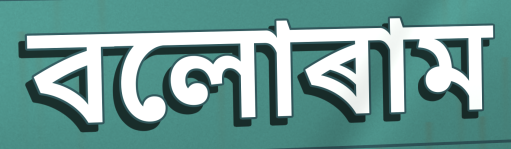
বলোৰাম